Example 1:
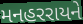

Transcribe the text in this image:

મનહરરાયને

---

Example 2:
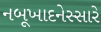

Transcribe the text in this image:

નબૂખાદનેસ્સારે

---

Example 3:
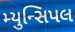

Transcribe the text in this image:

મ્યુન્સિપલ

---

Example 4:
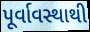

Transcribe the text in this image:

પૂર્વાવસ્થાથી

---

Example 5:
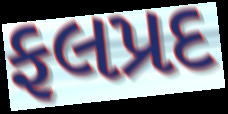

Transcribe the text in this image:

ફલપ્રદ